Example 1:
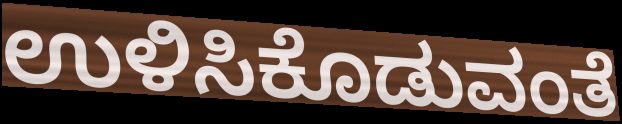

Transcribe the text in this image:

ಉಳಿಸಿಕೊಡುವಂತೆ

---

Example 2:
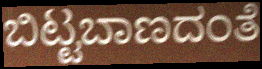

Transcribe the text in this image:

ಬಿಟ್ಟಬಾಣದಂತೆ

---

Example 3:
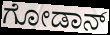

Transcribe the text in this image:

ಗೋಡಾನ್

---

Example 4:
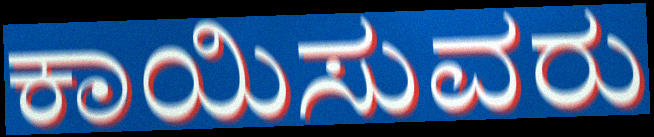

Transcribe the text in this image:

ಕಾಯಿಸುವರು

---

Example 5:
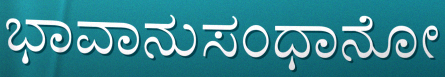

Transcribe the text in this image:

ಭಾವಾನುಸಂಧಾನೋ